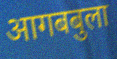
आगबबुला